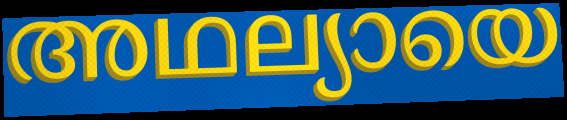
അഥല്യായെ